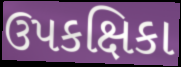
ઉપકક્ષિકા